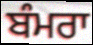
ਬੰਮਰਾ